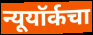
न्यूयॉर्कचा